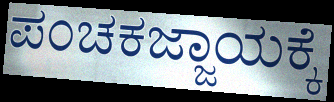
ಪಂಚಕಜ್ಜಾಯಕ್ಕೆ